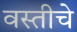
वस्तीचे